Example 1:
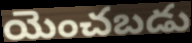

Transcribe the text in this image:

యెంచబడు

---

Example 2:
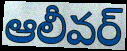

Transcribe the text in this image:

ఆలీవర్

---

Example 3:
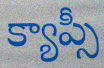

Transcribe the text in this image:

క్యాప్సీ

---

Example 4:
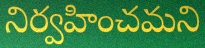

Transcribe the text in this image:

నిర్వహించమని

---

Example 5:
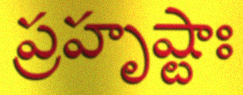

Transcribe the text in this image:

ప్రహృష్టాః